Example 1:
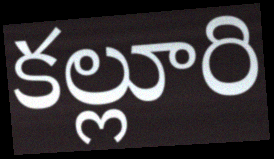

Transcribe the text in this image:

కల్లూరి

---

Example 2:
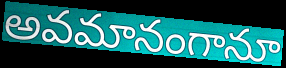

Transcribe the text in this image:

అవమానంగానూ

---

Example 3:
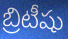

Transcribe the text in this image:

బ్రిటీషు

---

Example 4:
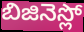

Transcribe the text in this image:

బిజినెస్లో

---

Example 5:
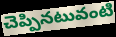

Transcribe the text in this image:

చెప్పినటువంటి